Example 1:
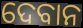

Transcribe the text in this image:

ଦେବାନ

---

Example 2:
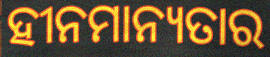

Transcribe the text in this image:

ହୀନମାନ୍ୟତାର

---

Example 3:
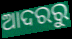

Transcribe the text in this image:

ଆଦରରୁ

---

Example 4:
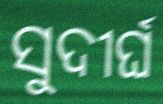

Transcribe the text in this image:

ସୁଦୀର୍ଘ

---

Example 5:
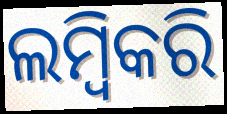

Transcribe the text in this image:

ଲମ୍ବିକରି